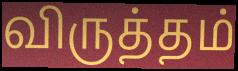
விருத்தம்